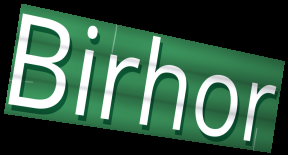
Birhor